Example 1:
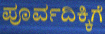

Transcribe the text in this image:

ಪೂರ್ವದಿಕ್ಕಿಗೆ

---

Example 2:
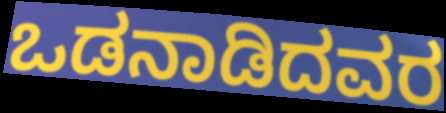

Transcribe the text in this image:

ಒಡನಾಡಿದವರ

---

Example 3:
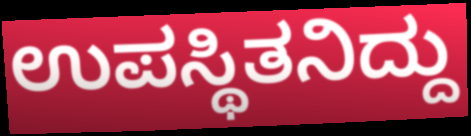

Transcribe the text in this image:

ಉಪಸ್ಥಿತನಿದ್ದು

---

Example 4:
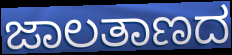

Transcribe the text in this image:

ಜಾಲತಾಣದ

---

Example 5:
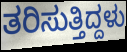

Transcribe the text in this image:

ತರಿಸುತ್ತಿದ್ದಳು